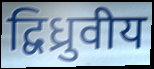
द्विध्रुवीय